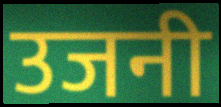
उजनी